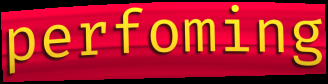
perfoming